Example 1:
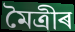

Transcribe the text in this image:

মৈত্ৰীৰ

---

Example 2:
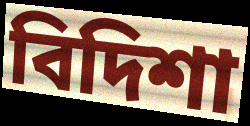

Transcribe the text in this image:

বিদিশা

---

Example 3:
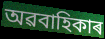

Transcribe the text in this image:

অৱবাহিকাৰ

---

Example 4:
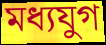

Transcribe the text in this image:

মধ্যযুগ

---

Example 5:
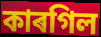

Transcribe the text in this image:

কাৰগিল